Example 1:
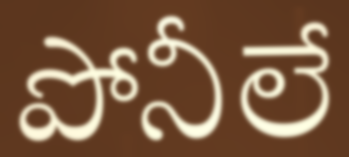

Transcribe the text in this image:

పోనీలే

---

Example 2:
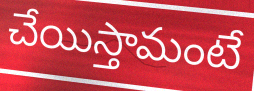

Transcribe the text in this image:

చేయిస్తామంటే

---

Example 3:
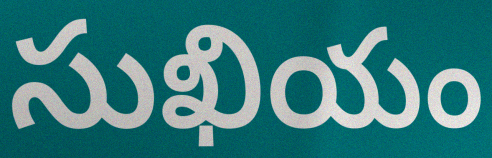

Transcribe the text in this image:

సుఖియం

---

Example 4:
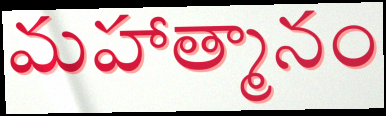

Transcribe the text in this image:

మహాత్మానం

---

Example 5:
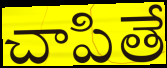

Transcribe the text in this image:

చాపితే